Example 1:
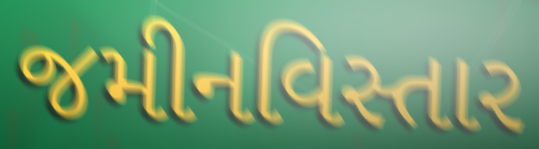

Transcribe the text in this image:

જમીનવિસ્તાર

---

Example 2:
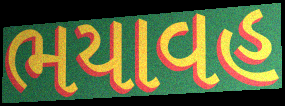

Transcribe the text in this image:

ભયાવહ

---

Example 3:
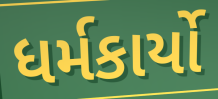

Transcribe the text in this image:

ધર્મકાર્યો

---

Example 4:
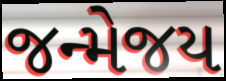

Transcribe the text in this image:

જન્મેજય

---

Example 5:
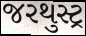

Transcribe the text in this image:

જરથુસ્ટ્ર